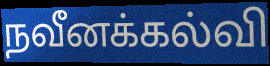
நவீனக்கல்வி